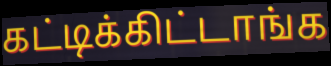
கட்டிக்கிட்டாங்க